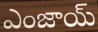
ఎంజాయ్